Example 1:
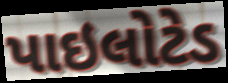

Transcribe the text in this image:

પાઇલોટેડ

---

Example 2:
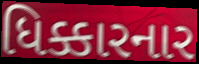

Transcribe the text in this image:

ધિક્કારનાર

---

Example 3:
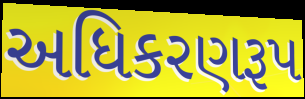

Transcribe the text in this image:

અધિકરણરૂપ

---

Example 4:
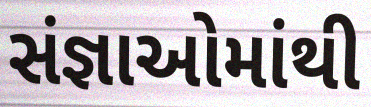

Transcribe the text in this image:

સંજ્ઞાઓમાંથી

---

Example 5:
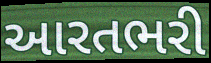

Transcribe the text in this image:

આરતભરી